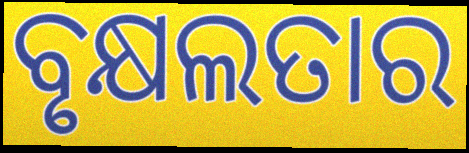
ବୃକ୍ଷଲତାର